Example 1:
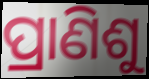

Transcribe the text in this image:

ପ୍ରାଣିଶୁ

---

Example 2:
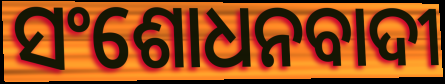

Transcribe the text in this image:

ସଂଶୋଧନବାଦୀ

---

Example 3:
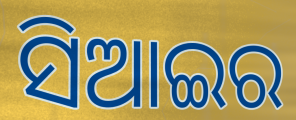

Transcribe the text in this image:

ସିଆଇର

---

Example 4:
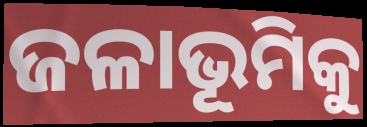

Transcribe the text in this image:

ଜଳାଭୂମିକୁ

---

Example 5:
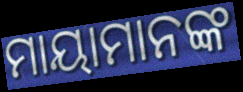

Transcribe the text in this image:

ମାୟାମାନଙ୍କ